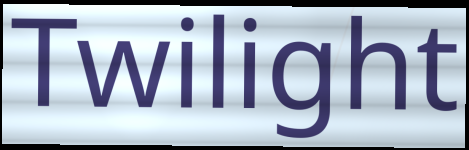
Twilight